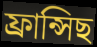
ফ্ৰান্সিছ